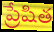
ప్రేషిత